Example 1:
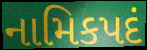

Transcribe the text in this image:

નામિકપદં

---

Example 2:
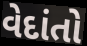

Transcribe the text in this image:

વેદાંતો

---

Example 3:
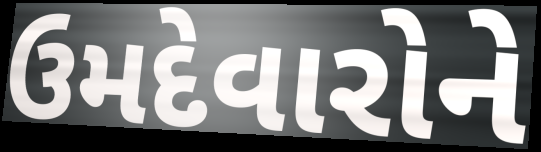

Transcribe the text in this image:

ઉમદેવારોને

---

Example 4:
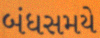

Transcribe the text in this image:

બંધસમયે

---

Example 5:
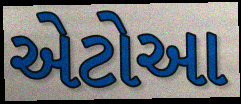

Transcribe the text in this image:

એટોઆ